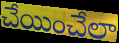
చేయించేలా